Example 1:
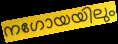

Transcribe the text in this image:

നഗോയയിലും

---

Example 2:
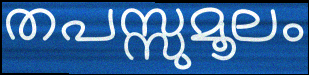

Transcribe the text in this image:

തപസ്സുമൂലം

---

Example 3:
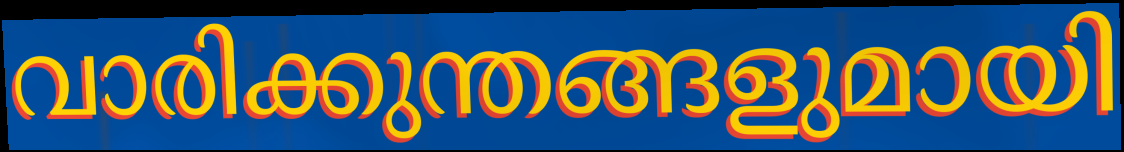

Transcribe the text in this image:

വാരിക്കുന്തങ്ങളുമായി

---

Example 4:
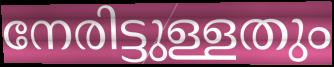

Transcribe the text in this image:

നേരിട്ടുള്ളതും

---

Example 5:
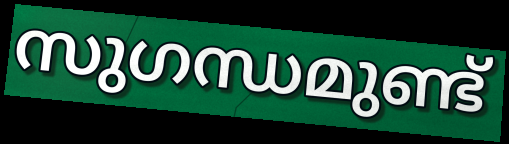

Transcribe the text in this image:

സുഗന്ധമുണ്ട്